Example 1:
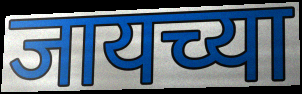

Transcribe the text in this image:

जायच्या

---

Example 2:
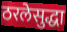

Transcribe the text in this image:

ठरलेसुद्धा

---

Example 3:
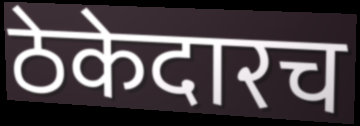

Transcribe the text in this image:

ठेकेदारच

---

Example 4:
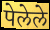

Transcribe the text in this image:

पेलेले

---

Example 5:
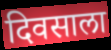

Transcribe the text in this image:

दिवसाला